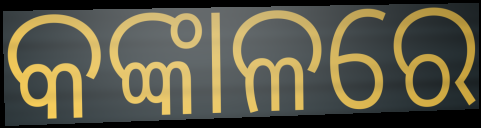
କଙ୍କାଳରେ